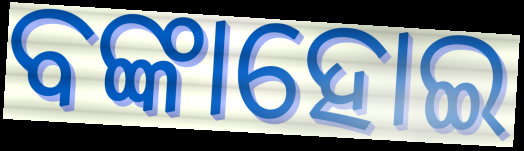
ବଙ୍କାହୋଇ